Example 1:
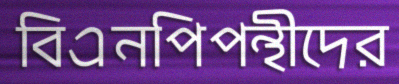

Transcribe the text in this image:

বিএনপিপন্থীদের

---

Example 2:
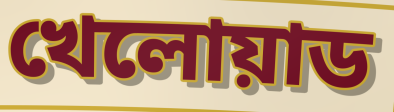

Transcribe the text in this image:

খেলোয়াড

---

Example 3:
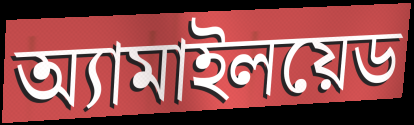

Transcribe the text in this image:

অ্যামাইলয়েড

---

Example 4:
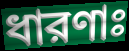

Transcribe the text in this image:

ধারণাঃ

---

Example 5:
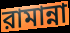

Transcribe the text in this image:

রামান্না